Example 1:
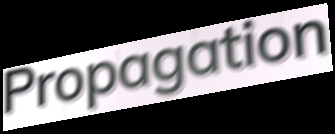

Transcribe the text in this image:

Propagation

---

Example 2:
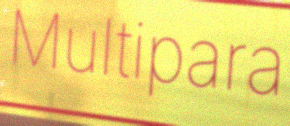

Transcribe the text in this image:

Multipara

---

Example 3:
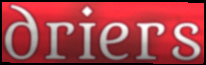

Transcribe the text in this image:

driers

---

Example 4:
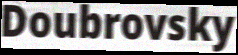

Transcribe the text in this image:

Doubrovsky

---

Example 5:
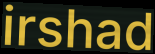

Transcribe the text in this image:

irshad